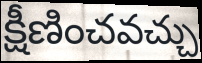
క్షీణించవచ్చు